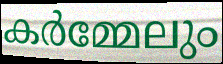
കർമ്മേലും